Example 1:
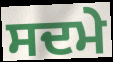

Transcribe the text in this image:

ਸਦਮੇ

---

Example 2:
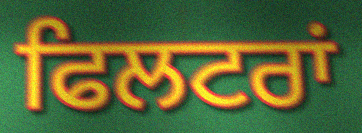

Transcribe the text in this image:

ਫਿਲਟਰਾਂ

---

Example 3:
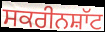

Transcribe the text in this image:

ਸਕਰੀਨਸ਼ਾੱਟ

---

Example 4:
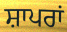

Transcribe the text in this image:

ਸ਼ਾਪਰਾਂ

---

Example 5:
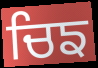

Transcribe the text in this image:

ਚਿਙ